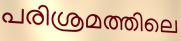
പരിശ്രമത്തിലെ